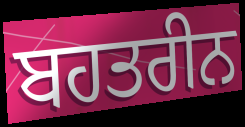
ਬਹਤਰੀਨ